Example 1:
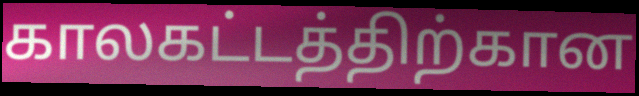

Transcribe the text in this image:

காலகட்டத்திற்கான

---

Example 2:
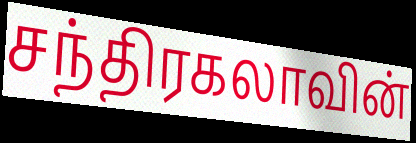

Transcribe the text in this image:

சந்திரகலாவின்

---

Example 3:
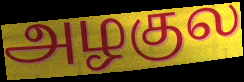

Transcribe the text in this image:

அழகுல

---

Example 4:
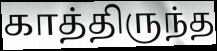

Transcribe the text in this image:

காத்திருந்த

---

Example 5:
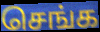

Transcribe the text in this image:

செங்க